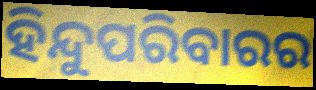
ହିନ୍ଦୁପରିବାରର